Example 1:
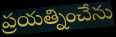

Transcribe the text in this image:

ప్రయత్నించేను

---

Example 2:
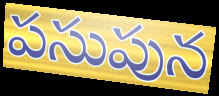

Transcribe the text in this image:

పసుపున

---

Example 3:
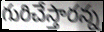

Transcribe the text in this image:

గురిచేస్తారన్న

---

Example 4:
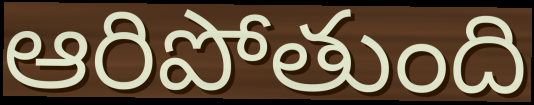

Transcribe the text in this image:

ఆరిపోతుంది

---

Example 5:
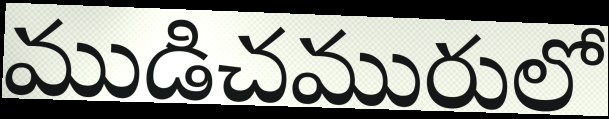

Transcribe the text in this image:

ముడిచమురులో